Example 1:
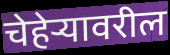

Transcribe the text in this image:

चेहेऱ्यावरील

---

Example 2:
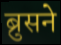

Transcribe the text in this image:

ब्रुसने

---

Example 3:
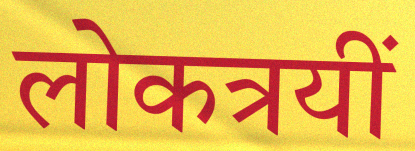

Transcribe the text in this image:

लोकत्रयीं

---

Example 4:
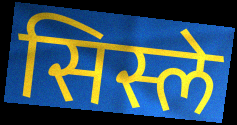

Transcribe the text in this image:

सिस्ले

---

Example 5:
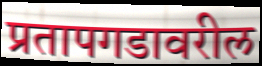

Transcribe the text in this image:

प्रतापगडावरील